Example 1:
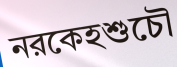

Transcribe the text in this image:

নরকেহশুচৌ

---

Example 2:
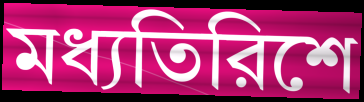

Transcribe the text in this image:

মধ্যতিরিশে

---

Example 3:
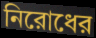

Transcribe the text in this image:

নিরোধের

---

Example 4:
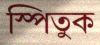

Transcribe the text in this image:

স্পিতুক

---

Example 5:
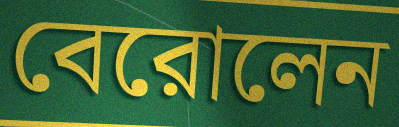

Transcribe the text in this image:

বেরোলেন